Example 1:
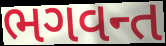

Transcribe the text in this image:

ભગવન્ત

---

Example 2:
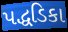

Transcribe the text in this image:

પદ્ધડિકા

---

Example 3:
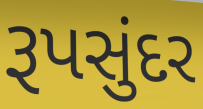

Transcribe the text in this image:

રૂપસુંદર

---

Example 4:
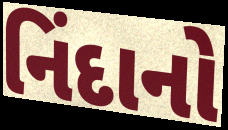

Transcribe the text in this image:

નિંદાનો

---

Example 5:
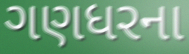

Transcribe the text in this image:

ગણધરના